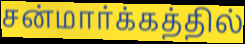
சன்மார்க்கத்தில்